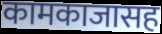
कामकाजासह